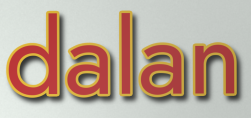
dalan